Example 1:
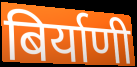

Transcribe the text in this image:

बिर्याणी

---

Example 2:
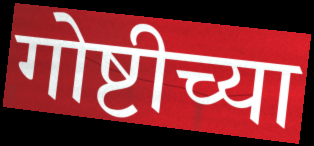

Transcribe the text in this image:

गोष्टीच्या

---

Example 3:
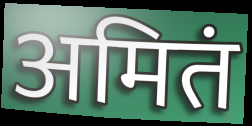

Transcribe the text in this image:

अमितं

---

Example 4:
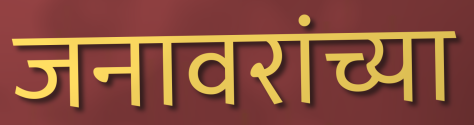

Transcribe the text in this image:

जनावरांच्या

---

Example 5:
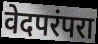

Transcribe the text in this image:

वेदपरंपरा